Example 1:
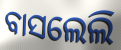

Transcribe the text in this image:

ବାସଲେଲି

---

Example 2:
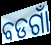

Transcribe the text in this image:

ବଡଗାଁ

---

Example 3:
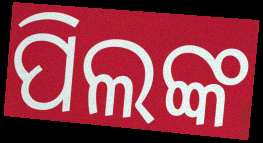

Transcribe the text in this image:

ପିଲଙ୍କ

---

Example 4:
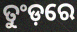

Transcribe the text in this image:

ତୁଂଡ଼ରେ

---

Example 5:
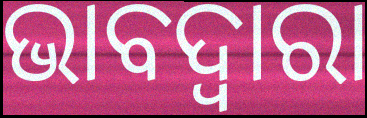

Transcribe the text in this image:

ଭାବଦ୍ଵାରା